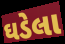
ઘડેલા